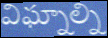
విఘ్నాల్ని